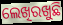
ଲେଖିରଖୁଛି